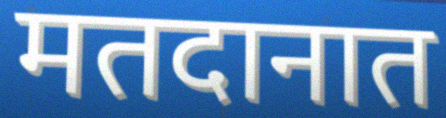
मतदानात